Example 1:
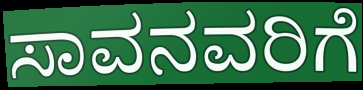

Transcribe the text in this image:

ಸಾವನವರಿಗೆ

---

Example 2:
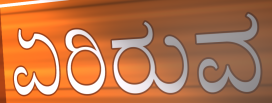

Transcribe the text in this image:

ಏರಿರುವ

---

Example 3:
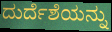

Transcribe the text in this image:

ದುರ್ದೆಶೆಯನ್ನು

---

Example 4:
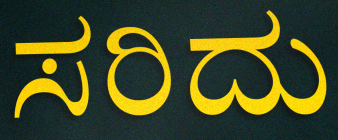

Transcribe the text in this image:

ಸರಿದು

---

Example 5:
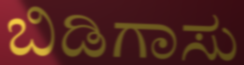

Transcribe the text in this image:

ಬಿಡಿಗಾಸು